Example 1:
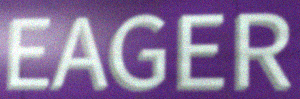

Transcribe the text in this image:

EAGER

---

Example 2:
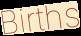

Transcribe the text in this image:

Births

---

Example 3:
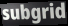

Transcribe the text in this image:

subgrid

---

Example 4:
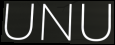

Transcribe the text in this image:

UNU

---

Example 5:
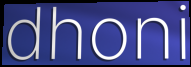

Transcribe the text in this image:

dhoni